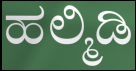
ಹಲ್ಮಿಡಿ